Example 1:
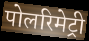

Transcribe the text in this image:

पोलरिमेट्री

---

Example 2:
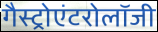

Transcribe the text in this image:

गैस्ट्रोएंटरोलॉजी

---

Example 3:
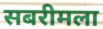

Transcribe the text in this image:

सबरीमला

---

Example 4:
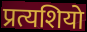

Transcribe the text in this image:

प्रत्यशियो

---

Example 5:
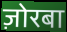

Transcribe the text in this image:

ज़ोरबा